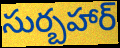
సుర్బహార్